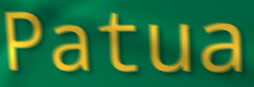
Patua